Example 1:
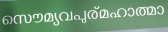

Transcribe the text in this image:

സൌമ്യവപുര്മഹാത്മാ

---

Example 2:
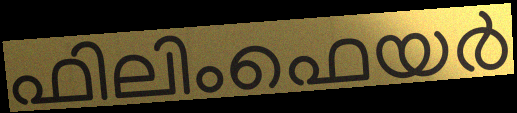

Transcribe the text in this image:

ഫിലിംഫെയർ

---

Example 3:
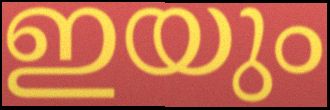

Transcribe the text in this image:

ഇയും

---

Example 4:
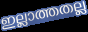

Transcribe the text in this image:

ഇല്ലാത്തതല്ല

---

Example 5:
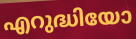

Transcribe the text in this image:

എറുദ്ധിയോ